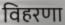
विहरणा